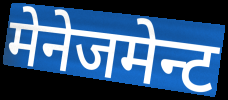
मेनेजमेन्ट